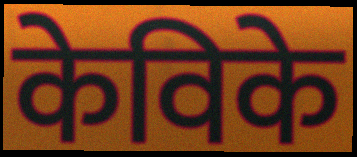
केविके